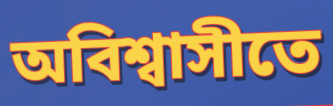
অবিশ্বাসীতে